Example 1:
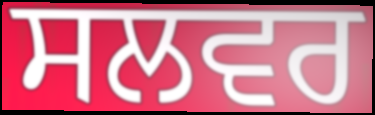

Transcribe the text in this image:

ਸਲਵਰ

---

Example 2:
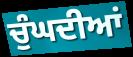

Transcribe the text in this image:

ਚੁੰਘਦੀਆਂ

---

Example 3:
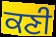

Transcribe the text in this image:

ਕਣੀ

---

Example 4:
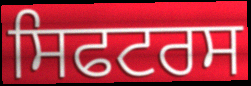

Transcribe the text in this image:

ਸਿਫਟਰਸ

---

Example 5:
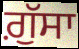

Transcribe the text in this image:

ਗ਼ੁੱਸਾ